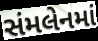
સંમલેનમાં